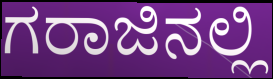
ಗರಾಜಿನಲ್ಲಿ